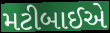
મટીબાઈએ